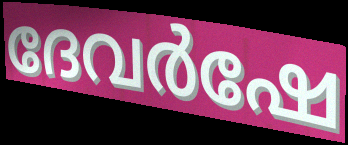
ദേവർഷേ